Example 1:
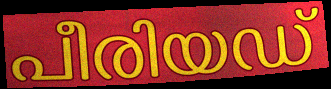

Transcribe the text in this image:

പീരിയഡ്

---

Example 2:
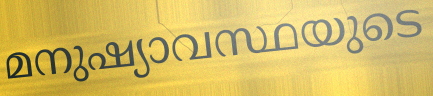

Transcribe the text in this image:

മനുഷ്യാവസ്ഥയുടെ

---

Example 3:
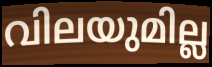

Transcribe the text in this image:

വിലയുമില്ല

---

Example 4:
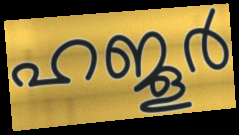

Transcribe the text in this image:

ഹജൂർ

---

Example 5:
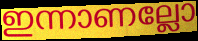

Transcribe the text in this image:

ഇന്നാണല്ലോ